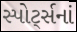
સ્પોર્ટ્સનાં